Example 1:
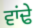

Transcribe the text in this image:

ਵਾਂਢੇ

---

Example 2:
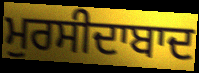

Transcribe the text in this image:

ਮੁਰਸੀਦਾਬਾਦ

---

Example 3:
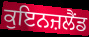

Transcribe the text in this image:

ਕੁਇਨਜ਼ਲੈਂਡ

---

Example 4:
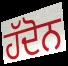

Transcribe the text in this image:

ਹੱਦੋਨ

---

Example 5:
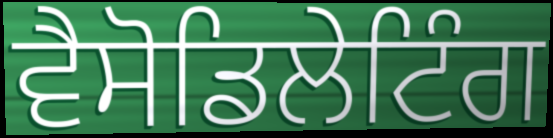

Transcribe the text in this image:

ਵੈਸੋਡਿਲੇਟਿੰਗ